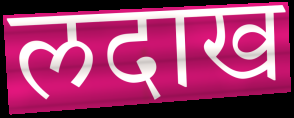
लदाख